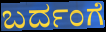
ಬರ್ದಂಗೆ